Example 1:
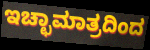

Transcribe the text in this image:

ಇಚ್ಛಾಮಾತ್ರದಿಂದ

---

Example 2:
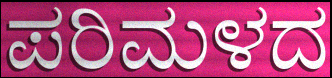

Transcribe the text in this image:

ಪರಿಮಳದ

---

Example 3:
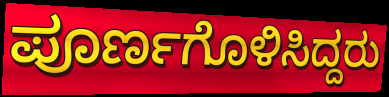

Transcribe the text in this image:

ಪೂರ್ಣಗೊಳಿಸಿದ್ದರು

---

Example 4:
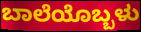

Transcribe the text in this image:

ಬಾಲೆಯೊಬ್ಬಳು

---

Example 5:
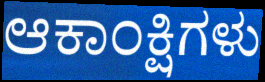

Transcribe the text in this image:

ಆಕಾಂಕ್ಷಿಗಳು